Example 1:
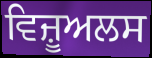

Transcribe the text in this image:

ਵਿਜ਼ੂਅਲਸ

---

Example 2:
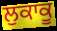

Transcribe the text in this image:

ਲੁਕਾਕੂ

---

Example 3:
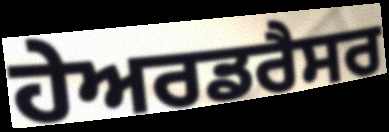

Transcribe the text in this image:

ਹੇਅਰਡਰੈਸਰ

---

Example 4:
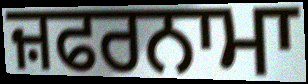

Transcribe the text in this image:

ਜ਼ਫਰਨਾਮਾ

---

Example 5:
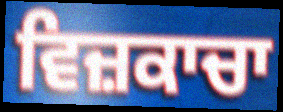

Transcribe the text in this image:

ਵਿਜ਼ਕਾਚਾ